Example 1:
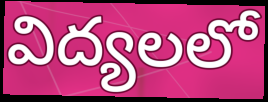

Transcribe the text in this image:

విద్యలలో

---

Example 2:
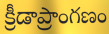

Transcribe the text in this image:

క్రీడాప్రాంగణం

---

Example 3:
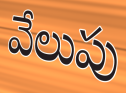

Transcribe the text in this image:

వేలుపు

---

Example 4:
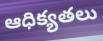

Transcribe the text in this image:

ఆధిక్యతలు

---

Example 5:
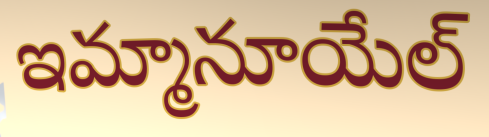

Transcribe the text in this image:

ఇమ్మానూయేల్